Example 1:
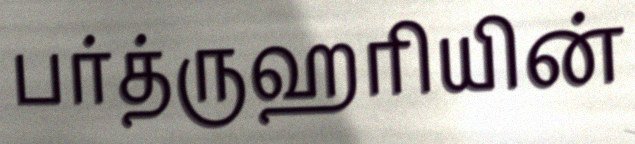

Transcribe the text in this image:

பர்த்ருஹரியின்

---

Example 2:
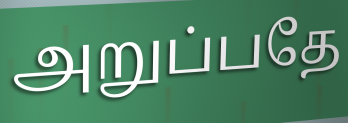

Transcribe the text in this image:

அறுப்பதே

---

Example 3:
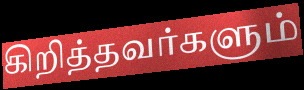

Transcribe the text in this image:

கிறித்தவர்களும்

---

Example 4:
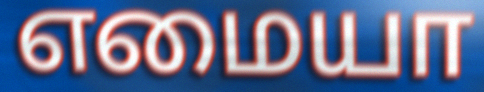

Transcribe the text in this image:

எமையா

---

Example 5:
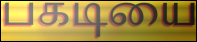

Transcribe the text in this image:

பகடியை